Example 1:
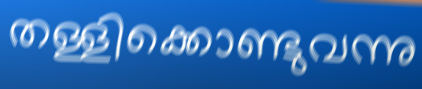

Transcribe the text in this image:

തള്ളിക്കൊണ്ടുവന്നു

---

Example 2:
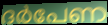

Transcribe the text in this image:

ദർപേണ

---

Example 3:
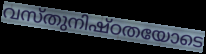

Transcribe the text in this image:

വസ്തുനിഷ്ഠതയോടെ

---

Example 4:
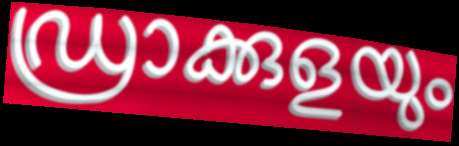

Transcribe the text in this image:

ഡ്രാക്കുളയും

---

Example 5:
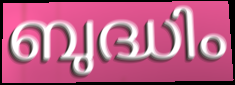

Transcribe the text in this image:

ബുദ്ധിം